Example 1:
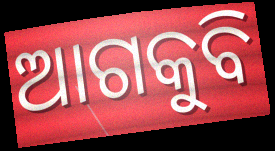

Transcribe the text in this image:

ଆଗକୁବି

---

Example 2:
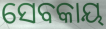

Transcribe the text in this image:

ସେବକାୟ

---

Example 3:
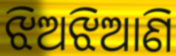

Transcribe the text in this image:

ଝିଅଝିଆଣି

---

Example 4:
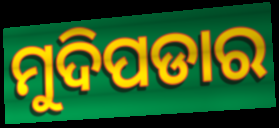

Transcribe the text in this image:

ମୁଦିପଡାର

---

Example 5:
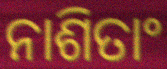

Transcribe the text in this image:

ନାଶିତାଂ